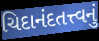
ચિદાનંદતત્ત્વનું